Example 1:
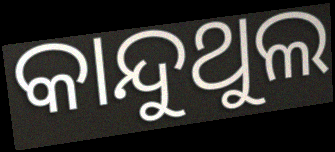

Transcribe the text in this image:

କାନ୍ଦୁଥୁଲ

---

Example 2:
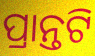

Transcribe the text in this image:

ପ୍ରାନ୍ତଟି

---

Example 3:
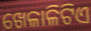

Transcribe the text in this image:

ଖେଳାଳିଟିଏ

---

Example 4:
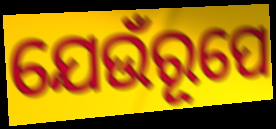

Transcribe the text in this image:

ଯେଉଁରୂପେ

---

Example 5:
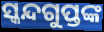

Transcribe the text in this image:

ସ୍କନ୍ଦଗୁପ୍ତଙ୍କ